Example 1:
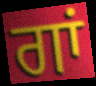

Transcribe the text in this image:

ਗਾਂ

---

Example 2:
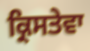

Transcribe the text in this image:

ਕ੍ਰਿਸਤੇਵਾ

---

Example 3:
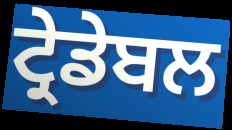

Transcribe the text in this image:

ਟ੍ਰੇਡੇਬਲ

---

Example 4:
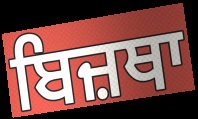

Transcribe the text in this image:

ਬਿਜ਼ਥਾ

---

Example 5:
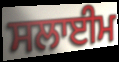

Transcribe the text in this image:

ਸਲਾਈਮ